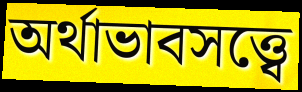
অর্থাভাবসত্ত্বে